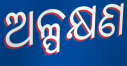
ଅଳ୍ପକ୍ଷଣ